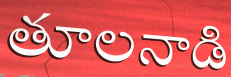
తూలనాడి